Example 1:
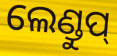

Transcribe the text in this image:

ଲେଣ୍ଡୁପ୍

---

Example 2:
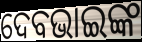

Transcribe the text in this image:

ଦେବଭାଇଙ୍କ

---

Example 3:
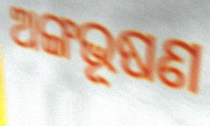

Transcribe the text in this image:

ଅଙ୍ଗଭୂଷଣ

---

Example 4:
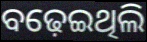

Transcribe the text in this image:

ବଢ଼େଇଥିଲି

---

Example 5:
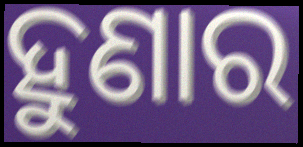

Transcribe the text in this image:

ହୁଣାର